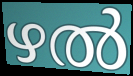
ഴൽ